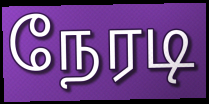
நேரடி